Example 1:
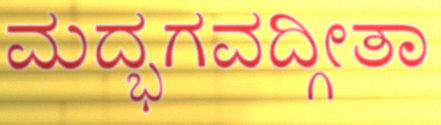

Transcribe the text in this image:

ಮದ್ಭಗವದ್ಗೀತಾ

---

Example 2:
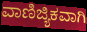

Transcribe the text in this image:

ವಾಣಿಜ್ಯಿಕವಾಗಿ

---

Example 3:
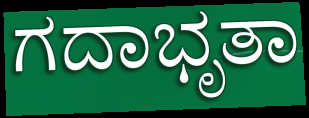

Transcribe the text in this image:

ಗದಾಭೃತಾ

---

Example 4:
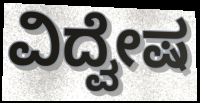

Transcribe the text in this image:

ವಿದ್ವೇಷ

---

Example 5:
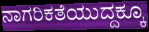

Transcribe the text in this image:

ನಾಗರಿಕತೆಯುದ್ದಕ್ಕೂ